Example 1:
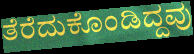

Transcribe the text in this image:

ತೆರೆದುಕೊಂಡಿದ್ದವು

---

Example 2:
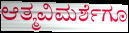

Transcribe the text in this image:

ಆತ್ಮವಿಮರ್ಶೆಗೂ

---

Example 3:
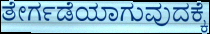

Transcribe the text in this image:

ತೇರ್ಗಡೆಯಾಗುವುದಕ್ಕೆ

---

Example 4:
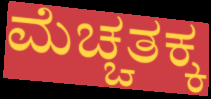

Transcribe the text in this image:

ಮೆಚ್ಚತಕ್ಕ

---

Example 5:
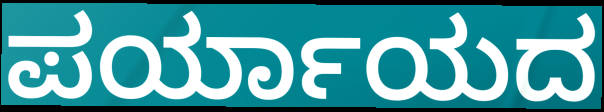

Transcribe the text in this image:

ಪರ್ಯಾಯದ